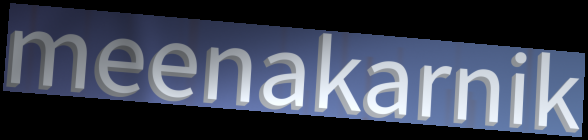
meenakarnik